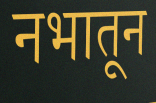
नभातून